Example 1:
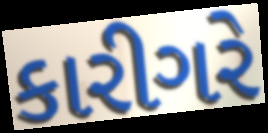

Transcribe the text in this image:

કારીગરે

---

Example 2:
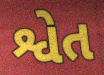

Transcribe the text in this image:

શ્વેત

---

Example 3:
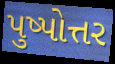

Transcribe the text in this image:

પુષ્પોત્તર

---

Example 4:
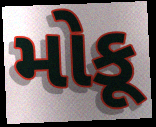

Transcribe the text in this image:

મોકૂ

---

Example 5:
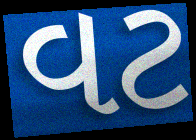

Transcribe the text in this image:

વટ